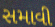
સમાવી